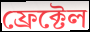
ফ্ৰেক্টেল